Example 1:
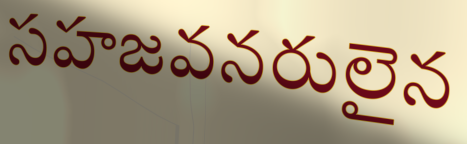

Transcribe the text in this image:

సహజవనరులైన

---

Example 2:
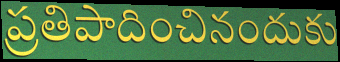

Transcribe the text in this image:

ప్రతిపాదించినందుకు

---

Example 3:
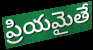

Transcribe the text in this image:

ప్రియమైతే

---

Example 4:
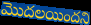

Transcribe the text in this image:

మొదలయిందని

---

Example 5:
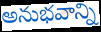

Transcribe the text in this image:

అనుభవాన్ని